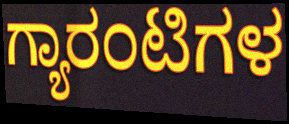
ಗ್ಯಾರಂಟಿಗಳ